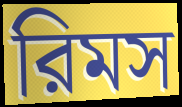
রিমস